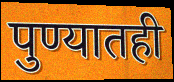
पुण्यातही